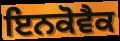
ਇਨਕੋਵੈਕ